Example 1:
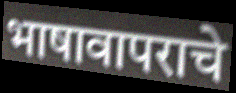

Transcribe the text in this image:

भाषावापराचे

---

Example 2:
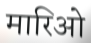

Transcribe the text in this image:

मारिओ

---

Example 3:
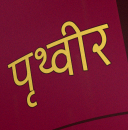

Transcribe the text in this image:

पृथ्वीर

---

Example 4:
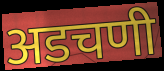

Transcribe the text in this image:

अडचणी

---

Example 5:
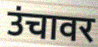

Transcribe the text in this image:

उंचावर